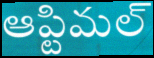
ఆప్టిమల్